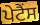
ਪੇਟੈਂਸ